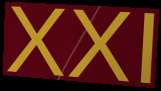
XXI